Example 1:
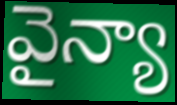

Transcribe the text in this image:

వైన్యా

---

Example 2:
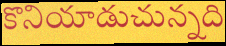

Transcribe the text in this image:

కొనియాడుచున్నది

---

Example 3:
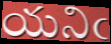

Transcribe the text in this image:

యనిఁ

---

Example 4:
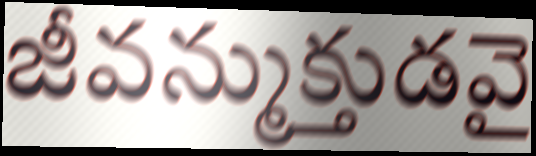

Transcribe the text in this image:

జీవన్ముక్తుడవై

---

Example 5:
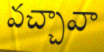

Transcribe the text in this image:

వచ్చావా